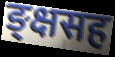
ङ्क्षसह